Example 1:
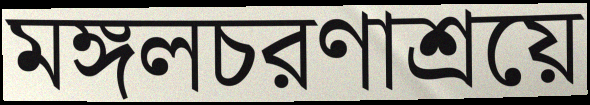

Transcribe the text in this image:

মঙ্গলচরণাশ্রয়ে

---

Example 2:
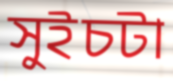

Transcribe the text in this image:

সুইচটা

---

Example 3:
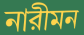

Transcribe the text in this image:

নারীমন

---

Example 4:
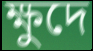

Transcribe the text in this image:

ক্ষুদে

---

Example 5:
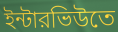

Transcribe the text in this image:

ইন্টারভিউতে